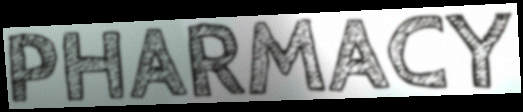
PHARMACY